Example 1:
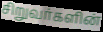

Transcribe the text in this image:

சிறுவர்களின்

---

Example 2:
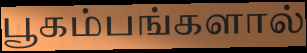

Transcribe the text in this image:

பூகம்பங்களால்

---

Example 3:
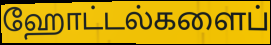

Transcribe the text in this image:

ஹோட்டல்களைப்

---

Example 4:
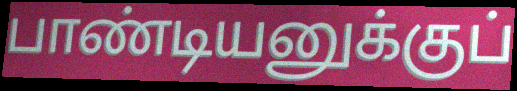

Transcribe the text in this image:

பாண்டியனுக்குப்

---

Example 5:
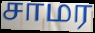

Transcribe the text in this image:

சாமர